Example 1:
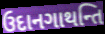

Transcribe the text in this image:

ઉદાનગાથન્તિ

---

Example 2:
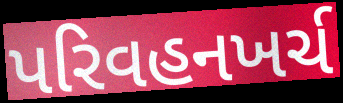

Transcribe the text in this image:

પરિવહનખર્ચ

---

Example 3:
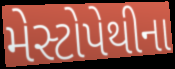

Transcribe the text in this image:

મેસ્ટોપેથીના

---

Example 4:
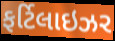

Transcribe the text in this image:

ફર્ટિલાઇઝર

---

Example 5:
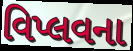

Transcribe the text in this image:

વિપ્લવના